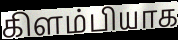
கிளம்பியாக